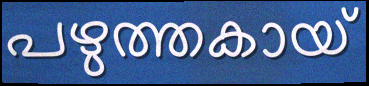
പഴുത്തകായ്